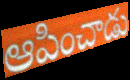
ఆపించాడు